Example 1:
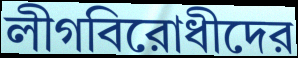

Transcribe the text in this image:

লীগবিরোধীদের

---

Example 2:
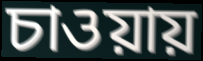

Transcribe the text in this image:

চাওয়ায়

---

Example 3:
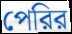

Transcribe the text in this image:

পেরির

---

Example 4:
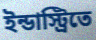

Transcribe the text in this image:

ইন্ডাস্ট্রিতে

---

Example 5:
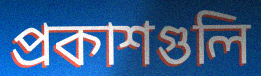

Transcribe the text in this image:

প্রকাশগুলি